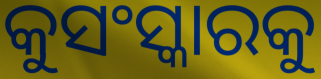
କୁସଂସ୍କାରକୁ